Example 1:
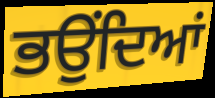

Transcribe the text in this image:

ਭਉਂਦਿਆਂ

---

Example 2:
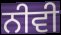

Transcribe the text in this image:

ਨੀਵੀ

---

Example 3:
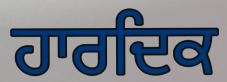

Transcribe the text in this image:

ਹਾਰਦਿਕ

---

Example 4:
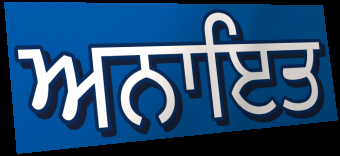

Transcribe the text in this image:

ਅਨਾਇਤ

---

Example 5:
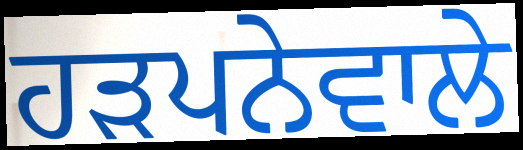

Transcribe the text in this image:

ਹੜਪਨੇਵਾਲੇ